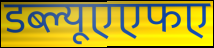
डब्ल्यूएएफए